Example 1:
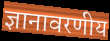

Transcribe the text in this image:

ज्ञानावरणीय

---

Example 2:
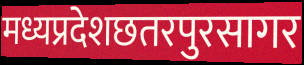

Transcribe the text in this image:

मध्यप्रदेशछतरपुरसागर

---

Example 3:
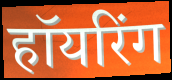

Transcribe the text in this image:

हॉयरिंग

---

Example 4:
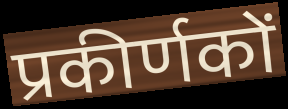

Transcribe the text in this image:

प्रकीर्णकों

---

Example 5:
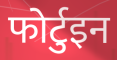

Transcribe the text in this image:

फोर्टुइन